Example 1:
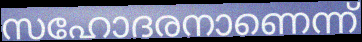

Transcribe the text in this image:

സഹോദരനാണെന്ന്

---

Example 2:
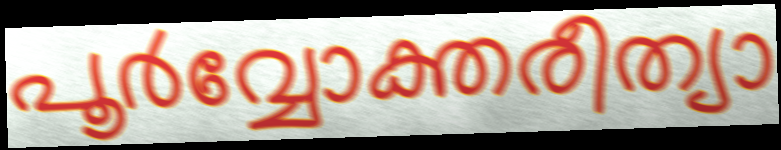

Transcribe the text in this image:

പൂർവ്വോക്തരീത്യാ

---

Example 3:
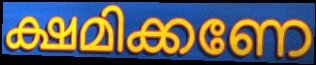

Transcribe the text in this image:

ക്ഷമിക്കണേ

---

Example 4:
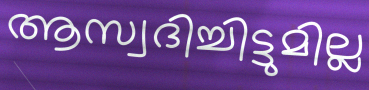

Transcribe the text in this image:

ആസ്വദിച്ചിട്ടുമില്ല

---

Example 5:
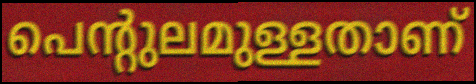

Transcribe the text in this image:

പെന്റുലമുള്ളതാണ്